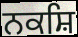
ਨਕਸ਼ਿ